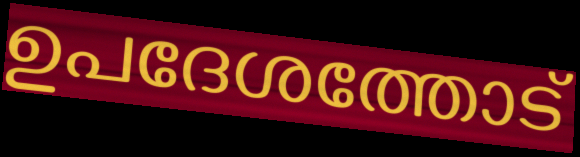
ഉപദേശത്തോട്